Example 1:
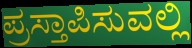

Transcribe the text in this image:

ಪ್ರಸ್ತಾಪಿಸುವಲ್ಲಿ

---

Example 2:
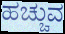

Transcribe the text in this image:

ಹಚ್ಚುವ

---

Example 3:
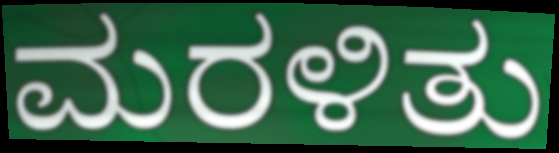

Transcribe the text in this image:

ಮರಳಿತು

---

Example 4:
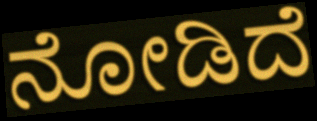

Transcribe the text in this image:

ನೋಡಿದೆ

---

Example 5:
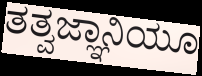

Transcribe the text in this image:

ತತ್ವಜ್ಞಾನಿಯೂ